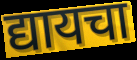
द्यायचा